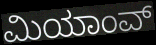
ಮಿಯಾಂವ್